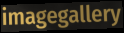
imagegallery